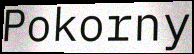
Pokorny